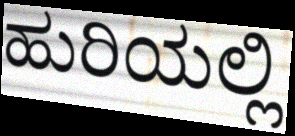
ಹುರಿಯಲ್ಲಿ